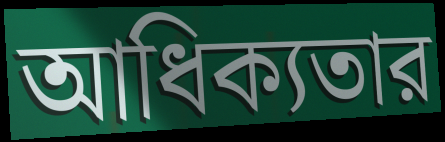
আধিক্যতার